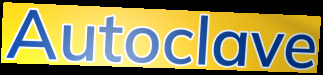
Autoclave